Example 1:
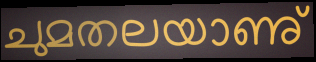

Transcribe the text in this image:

ചുമതലയാണു്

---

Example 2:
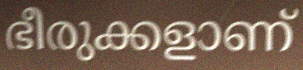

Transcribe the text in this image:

ഭീരുക്കളാണ്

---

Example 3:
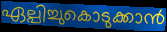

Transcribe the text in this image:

ഏല്പിച്ചുകൊടുക്കാൻ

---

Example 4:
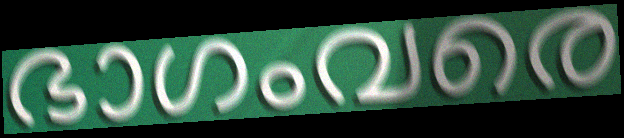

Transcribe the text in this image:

ഭാഗംവരെ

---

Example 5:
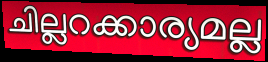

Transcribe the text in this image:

ചില്ലറക്കാര്യമല്ല